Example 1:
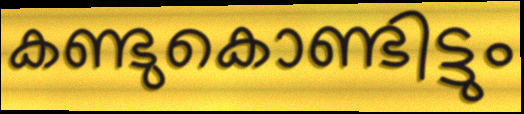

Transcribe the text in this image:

കണ്ടുകൊണ്ടിട്ടും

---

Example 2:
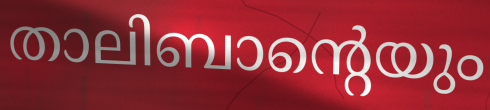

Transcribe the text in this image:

താലിബാന്റെയും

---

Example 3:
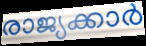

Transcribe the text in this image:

രാജ്യക്കാർ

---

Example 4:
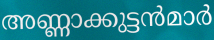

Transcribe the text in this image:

അണ്ണാക്കുട്ടൻമാർ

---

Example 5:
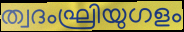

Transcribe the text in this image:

ത്വദംഘ്രിയുഗളം